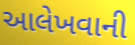
આલેખવાની